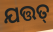
ଯତ୍ତତ୍